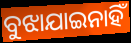
ବୁଝାଯାଇନାହିଁ